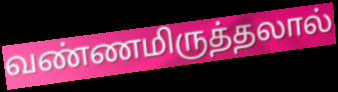
வண்ணமிருத்தலால்